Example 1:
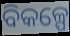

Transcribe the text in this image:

ବିକଳ୍ପେ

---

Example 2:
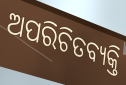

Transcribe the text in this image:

ଅପରିଚିତବ୍ୟକ୍ତି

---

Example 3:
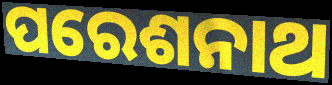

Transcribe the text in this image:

ପରେଶନାଥ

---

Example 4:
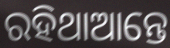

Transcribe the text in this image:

ରହିଥାଆନ୍ତେ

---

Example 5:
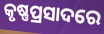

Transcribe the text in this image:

କୃଷ୍ଣପ୍ରସାଦରେ